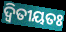
ଦ୍ବିତୀୟତଃ